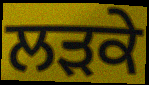
ਲਡ਼ਕੇ